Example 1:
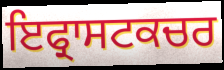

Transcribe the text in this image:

ਇਫ੍ਰਾਸਟਕਚਰ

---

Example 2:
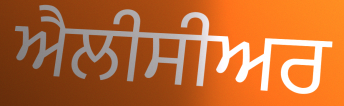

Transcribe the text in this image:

ਐਲੀਸੀਅਰ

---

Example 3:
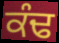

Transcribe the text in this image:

ਕੰਢ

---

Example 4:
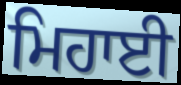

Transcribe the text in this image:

ਮਿਹਾਈ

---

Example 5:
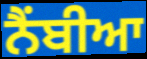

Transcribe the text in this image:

ਨੈਂਬੀਆ